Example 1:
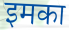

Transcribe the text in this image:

इमका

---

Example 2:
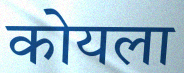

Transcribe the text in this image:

कोयला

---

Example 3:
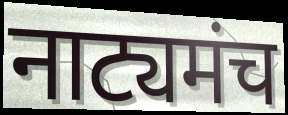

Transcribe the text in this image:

नाट्यमंच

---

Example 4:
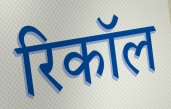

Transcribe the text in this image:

रिकॉल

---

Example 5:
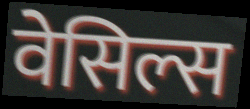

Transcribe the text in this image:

वेसिल्स